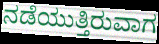
ನಡೆಯುತ್ತಿರುವಾಗ